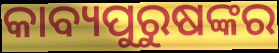
କାବ୍ୟପୁରୁଷଙ୍କର